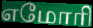
எமோரி